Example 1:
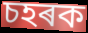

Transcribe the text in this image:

চহৰক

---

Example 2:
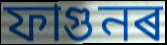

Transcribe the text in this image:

ফাগুনৰ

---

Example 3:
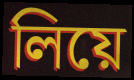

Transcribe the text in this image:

লিয়ে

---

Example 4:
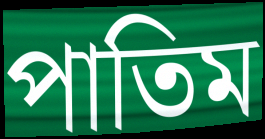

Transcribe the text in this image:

পাতিম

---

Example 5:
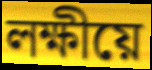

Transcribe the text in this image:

লক্ষীয়ে